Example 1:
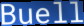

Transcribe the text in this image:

Buell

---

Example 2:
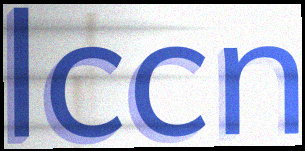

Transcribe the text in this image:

lccn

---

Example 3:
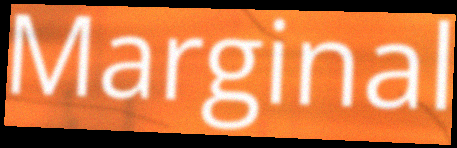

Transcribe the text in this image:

Marginal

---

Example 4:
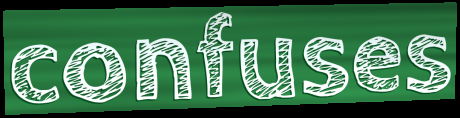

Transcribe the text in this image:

confuses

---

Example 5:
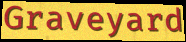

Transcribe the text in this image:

Graveyard